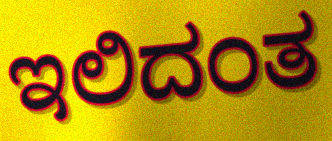
ಇಲಿದಂತ